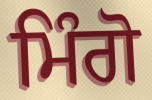
ਮਿੰਗੋ